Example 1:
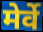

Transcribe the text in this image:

मेर्वे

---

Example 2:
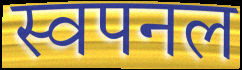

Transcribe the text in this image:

स्वपनल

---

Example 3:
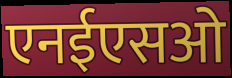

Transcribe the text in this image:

एनईएसओ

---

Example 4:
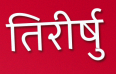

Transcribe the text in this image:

तिरीर्षु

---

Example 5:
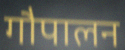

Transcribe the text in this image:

गौपालन